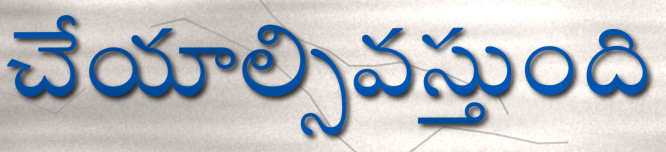
చేయాల్సివస్తుంది